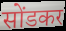
सोंडकर